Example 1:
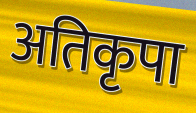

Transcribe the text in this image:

अतिकृपा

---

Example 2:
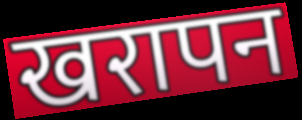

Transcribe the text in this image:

खरापन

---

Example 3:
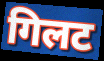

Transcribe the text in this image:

गिलट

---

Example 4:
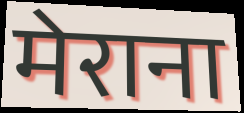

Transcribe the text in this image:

मेराना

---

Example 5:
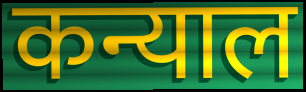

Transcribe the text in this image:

कन्याल